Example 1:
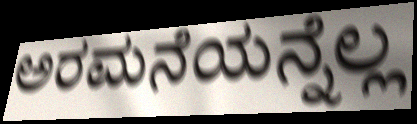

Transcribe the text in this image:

ಅರಮನೆಯನ್ನೆಲ್ಲ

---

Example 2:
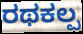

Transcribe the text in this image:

ರಥಕಲ್ಪ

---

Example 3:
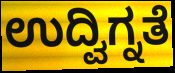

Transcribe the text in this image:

ಉದ್ವಿಗ್ನತೆ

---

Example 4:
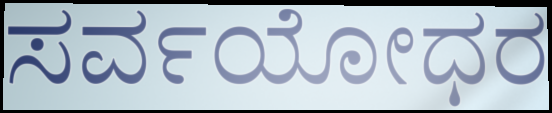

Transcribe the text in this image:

ಸರ್ವಯೋಧರ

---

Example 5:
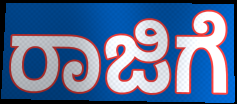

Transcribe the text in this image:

ರಾಜಿಗೆ